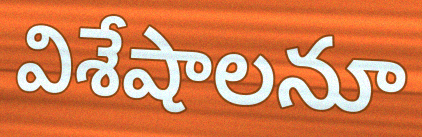
విశేషాలనూ